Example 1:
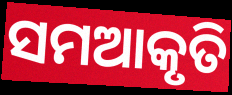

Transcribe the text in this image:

ସମଆକୃତି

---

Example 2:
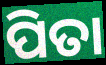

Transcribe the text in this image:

ପିତା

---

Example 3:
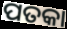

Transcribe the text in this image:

ପତକା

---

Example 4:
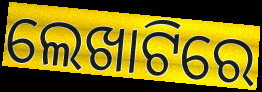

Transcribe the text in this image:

ଲେଖାଟିରେ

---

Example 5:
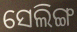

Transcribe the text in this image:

ସେଲିଙ୍ଗ